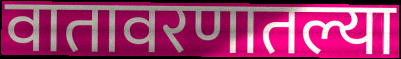
वातावरणातल्या